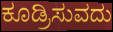
ಕೂಡ್ರಿಸುವದು